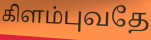
கிளம்புவதே